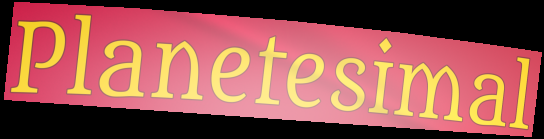
Planetesimal